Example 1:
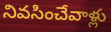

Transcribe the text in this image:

నివసించేవాళ్లు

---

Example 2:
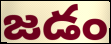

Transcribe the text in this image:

జడం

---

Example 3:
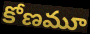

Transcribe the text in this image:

కోణమూ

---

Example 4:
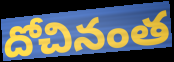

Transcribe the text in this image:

దోచినంత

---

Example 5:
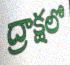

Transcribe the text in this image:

ద్రాక్షలో